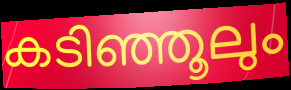
കടിഞ്ഞൂലും